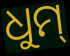
ଧୁମ୍